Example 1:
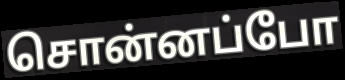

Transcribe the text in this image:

சொன்னப்போ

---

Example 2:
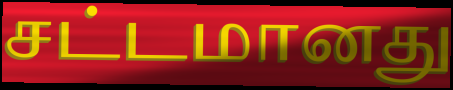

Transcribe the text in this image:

சட்டமானது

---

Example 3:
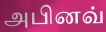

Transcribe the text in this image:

அபினவ்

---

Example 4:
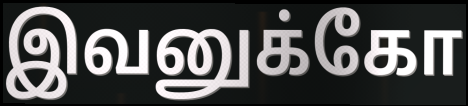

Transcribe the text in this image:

இவனுக்கோ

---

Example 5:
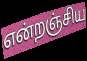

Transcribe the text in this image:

என்றஞ்சிய